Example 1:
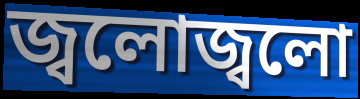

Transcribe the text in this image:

জ্বলোজ্বলো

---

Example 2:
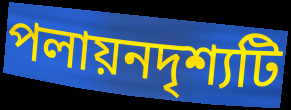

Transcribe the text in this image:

পলায়নদৃশ্যটি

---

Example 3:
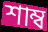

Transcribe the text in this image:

শাম্ব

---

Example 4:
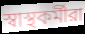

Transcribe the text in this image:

স্বাস্থকর্মীরা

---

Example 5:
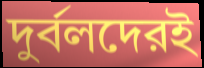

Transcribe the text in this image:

দুর্বলদেরই